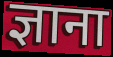
ज्ञाना